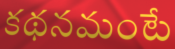
కథనమంటే